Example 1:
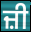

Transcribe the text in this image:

ਜ਼ੀ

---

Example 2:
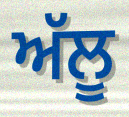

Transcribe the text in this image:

ਅੱਲੂ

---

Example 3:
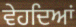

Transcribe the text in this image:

ਵੇਹਦਿਆਂ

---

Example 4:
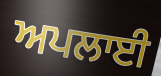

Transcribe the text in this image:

ਅਪਲਾਈ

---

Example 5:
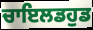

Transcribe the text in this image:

ਚਾਇਲਡਹੁਡ